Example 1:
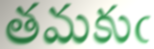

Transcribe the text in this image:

తమకుఁ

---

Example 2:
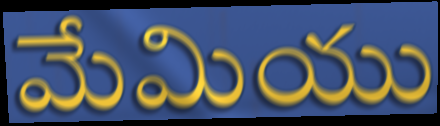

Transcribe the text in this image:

మేమియు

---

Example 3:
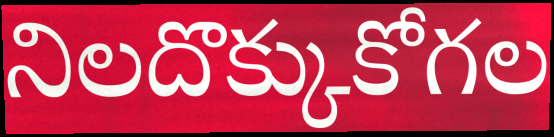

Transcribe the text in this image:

నిలదొక్కుకోగల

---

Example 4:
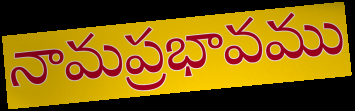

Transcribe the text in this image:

నామప్రభావము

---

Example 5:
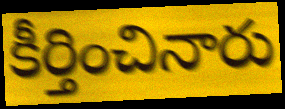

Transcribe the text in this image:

కీర్తించినారు